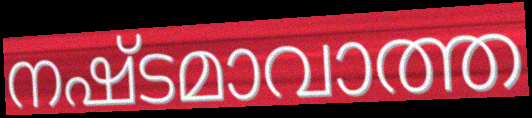
നഷ്ടമാവാത്ത